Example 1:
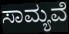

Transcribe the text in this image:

ಸಾಮ್ಯವೆ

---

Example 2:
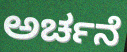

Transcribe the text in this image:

ಅರ್ಚನೆ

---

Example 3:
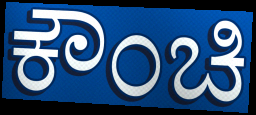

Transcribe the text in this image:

ಕೌಂಚಿ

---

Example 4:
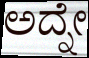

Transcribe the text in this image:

ಅದ್ನೇ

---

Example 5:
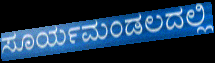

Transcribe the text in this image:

ಸೂರ್ಯಮಂಡಲದಲ್ಲಿ